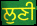
ਲੁਣੀ